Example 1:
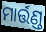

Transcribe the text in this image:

ମାର୍ତ୍ତଣ୍ଡ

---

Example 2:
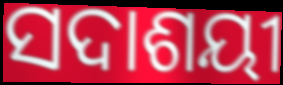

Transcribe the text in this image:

ସଦାଶୟୀ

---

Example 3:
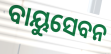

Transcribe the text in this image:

ବାୟୁସେବନ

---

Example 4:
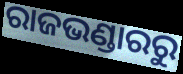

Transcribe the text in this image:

ରାଜଭଣ୍ଡାରରୁ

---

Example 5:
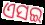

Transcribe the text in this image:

ଏସଇ